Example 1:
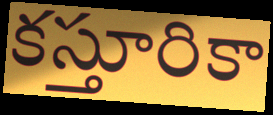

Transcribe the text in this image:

కస్తూరికా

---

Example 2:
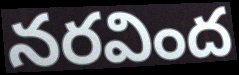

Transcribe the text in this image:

నరవింద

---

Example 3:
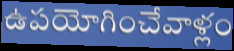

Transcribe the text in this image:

ఉపయోగించేవాళ్లం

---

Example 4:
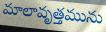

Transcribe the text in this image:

మాలావృత్తమును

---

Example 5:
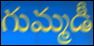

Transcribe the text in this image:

గుమ్మడీ